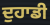
ਦੁਹਾਡੀ